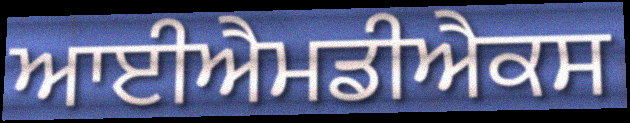
ਆਈਐਮਡੀਐਕਸ